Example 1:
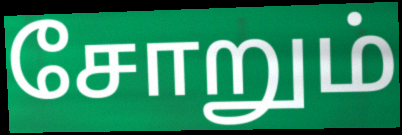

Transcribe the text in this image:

சோறும்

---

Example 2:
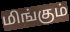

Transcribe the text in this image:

மிங்கும்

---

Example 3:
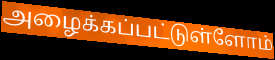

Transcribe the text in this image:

அழைக்கப்பட்டுள்ளோம்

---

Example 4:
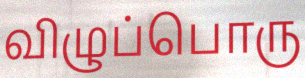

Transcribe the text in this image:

விழுப்பொரு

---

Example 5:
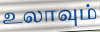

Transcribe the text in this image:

உலாவும்